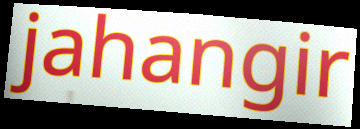
jahangir